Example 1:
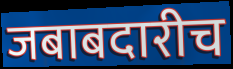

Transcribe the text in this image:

जबाबदारीच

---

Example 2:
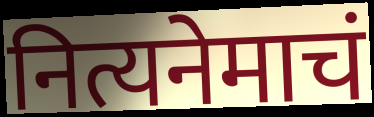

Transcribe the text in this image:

नित्यनेमाचं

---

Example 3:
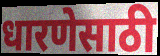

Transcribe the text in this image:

धारणेसाठी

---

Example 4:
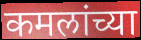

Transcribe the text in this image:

कमलांच्या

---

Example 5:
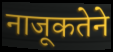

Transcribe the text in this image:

नाजूकतेने